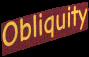
Obliquity